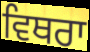
ਵਿਥਰਾ